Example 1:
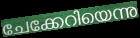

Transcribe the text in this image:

ചേക്കേറിയെന്നു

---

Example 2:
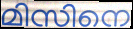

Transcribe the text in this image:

മിസിനെ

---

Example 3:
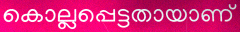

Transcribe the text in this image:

കൊല്ലപ്പെട്ടതായാണ്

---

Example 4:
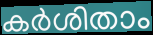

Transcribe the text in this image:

കർശിതാം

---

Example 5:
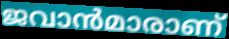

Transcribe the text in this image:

ജവാൻമാരാണ്